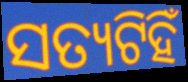
ସତ୍ୟଟିହିଁ